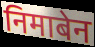
निमाबेन